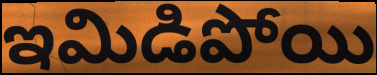
ఇమిడిపోయి